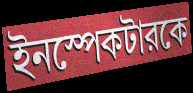
ইনস্পেকটারকে